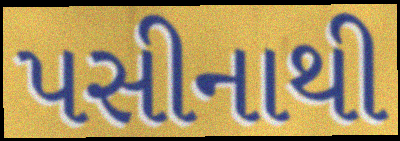
પસીનાથી